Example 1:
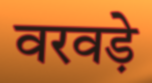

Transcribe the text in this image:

वरवड़े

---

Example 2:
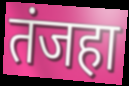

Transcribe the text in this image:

तंजहा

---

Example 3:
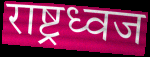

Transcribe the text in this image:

राष्ट्रध्वज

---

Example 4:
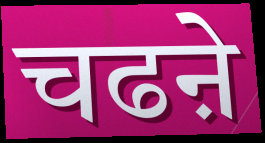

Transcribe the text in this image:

चढऩे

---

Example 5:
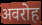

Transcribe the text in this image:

अवरोह